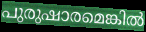
പുരുഷാരമെങ്കിൽ